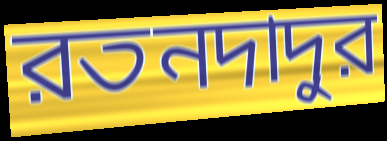
রতনদাদুর